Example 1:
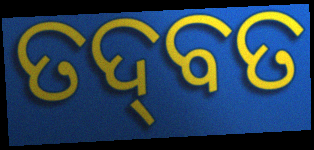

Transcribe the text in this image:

ତଦ୍‍ବତ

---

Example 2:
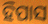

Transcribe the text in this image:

ହିପାସ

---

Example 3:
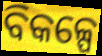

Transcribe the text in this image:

ବିକଳ୍ପେ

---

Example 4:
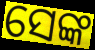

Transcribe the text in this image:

ସେଙ୍କ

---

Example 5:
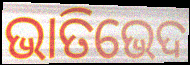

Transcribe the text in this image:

ଭାତିଭେଦ